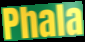
Phala